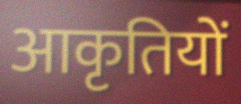
आकृतियों